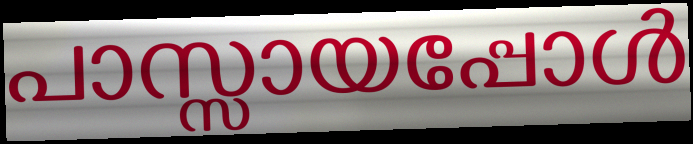
പാസ്സായപ്പോൾ